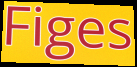
Figes